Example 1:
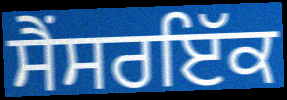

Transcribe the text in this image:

ਸੈਂਸਰਇੱਕ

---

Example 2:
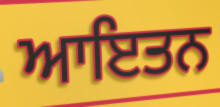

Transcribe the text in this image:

ਆਇਤਨ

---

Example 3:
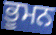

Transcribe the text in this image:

ਭੂਮਨ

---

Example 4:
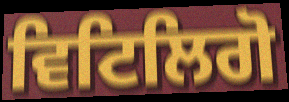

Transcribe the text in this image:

ਵਿਟਿਲਿਗੋ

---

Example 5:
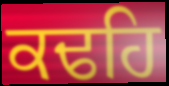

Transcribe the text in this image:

ਕਢਹਿ